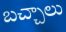
బచ్చాలు